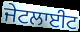
ਜੇਟਲਾਈਟ